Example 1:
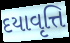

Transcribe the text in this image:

દયાવૃત્તિ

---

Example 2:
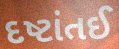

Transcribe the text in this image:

દષ્ટાંતઈ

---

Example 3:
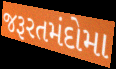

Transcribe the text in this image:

જરૂરતમંદોમા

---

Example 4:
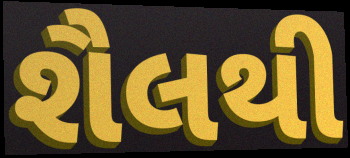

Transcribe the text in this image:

શૈલથી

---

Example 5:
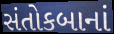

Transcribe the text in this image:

સંતોકબાનાં